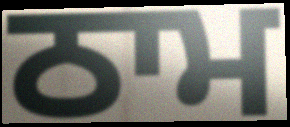
ਠਾਮ